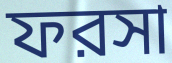
ফরসা